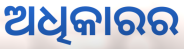
ଅଧିକାରର